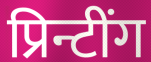
प्रिन्टींग